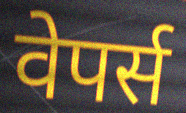
वेपर्स